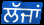
ਲੱਜਾਂ